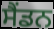
ਸੈਂਡਨ